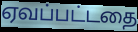
ஏவப்பட்டதை